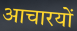
आचारयों